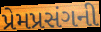
પ્રેમપ્રસંગની